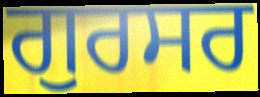
ਗੁਰਸਰ